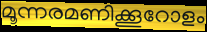
മൂന്നരമണിക്കൂറോളം